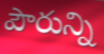
పౌరున్ని